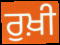
ਰੁਖ਼ੀ